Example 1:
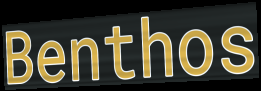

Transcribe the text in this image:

Benthos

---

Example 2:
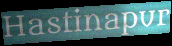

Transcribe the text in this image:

Hastinapur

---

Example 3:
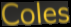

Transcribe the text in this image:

Coles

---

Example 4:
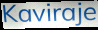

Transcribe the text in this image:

Kaviraje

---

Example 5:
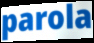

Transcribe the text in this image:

parola